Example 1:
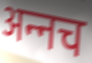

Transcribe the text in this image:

अन्नच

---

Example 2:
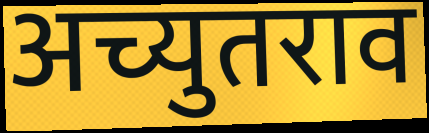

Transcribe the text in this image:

अच्युतराव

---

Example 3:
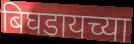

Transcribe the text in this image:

बिघडायच्या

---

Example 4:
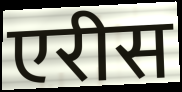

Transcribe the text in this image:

एरीस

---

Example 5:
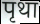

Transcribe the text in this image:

पृथा